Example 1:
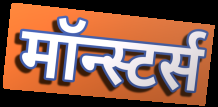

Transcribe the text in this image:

मॉन्स्टर्स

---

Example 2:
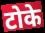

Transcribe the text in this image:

टोके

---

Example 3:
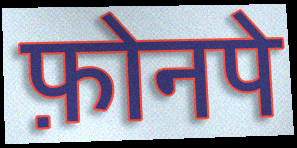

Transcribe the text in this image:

फ़ोनपे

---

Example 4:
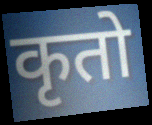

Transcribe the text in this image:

कृतो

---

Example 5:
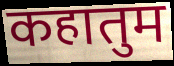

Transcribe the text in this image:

कहातुम